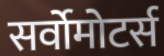
सर्वोमोटर्स